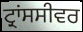
ਟ੍ਰਾਂਸਸੀਵਰ